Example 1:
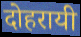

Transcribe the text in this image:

दोहरायी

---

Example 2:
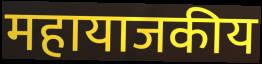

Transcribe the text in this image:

महायाजकीय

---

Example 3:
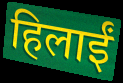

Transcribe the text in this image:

हिलाईं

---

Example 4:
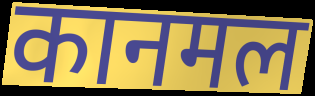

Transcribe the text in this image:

कानमल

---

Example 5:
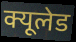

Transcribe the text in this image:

क्यूलेड